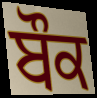
ਬੌਕ